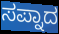
ಸಪ್ನಾದ